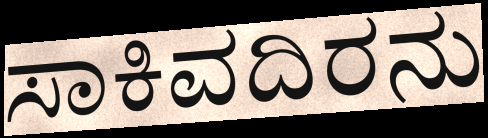
ಸಾಕಿವದಿರನು